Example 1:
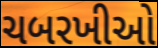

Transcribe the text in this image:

ચબરખીઓ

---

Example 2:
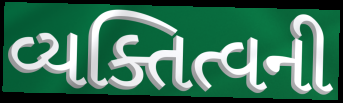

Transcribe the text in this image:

વ્યક્તિત્વની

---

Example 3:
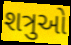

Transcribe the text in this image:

શત્રુઓ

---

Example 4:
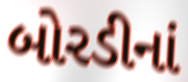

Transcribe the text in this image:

બોરડીનાં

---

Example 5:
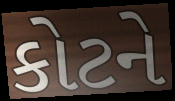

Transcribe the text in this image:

કોટને